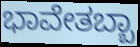
ಭಾವೇತಬ್ಬಾ